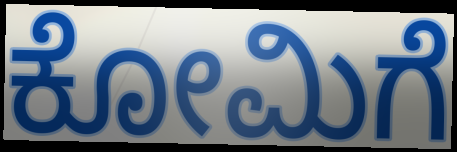
ಕೋಮಿಗೆ